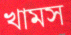
খামস